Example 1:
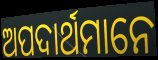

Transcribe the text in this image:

ଅପଦାର୍ଥମାନେ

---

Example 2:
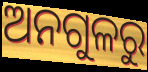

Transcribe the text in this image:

ଅନଗୁଳରୁ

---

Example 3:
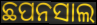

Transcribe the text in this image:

ଛପନସାଲ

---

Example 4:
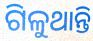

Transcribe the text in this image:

ଗିଳୁଥାନ୍ତି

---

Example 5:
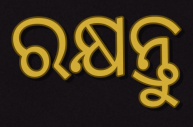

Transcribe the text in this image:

ରକ୍ଷନ୍ତୁ